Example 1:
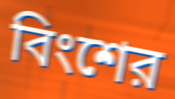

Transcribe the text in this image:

বিংশের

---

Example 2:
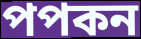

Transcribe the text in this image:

পপকন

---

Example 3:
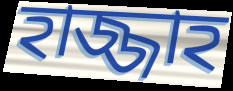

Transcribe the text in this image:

হাজ্জাহ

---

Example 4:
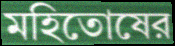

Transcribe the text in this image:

মহিতোষের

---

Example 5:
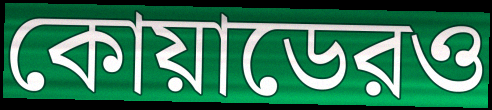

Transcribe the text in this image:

কোয়াডেরও